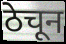
ठेचून